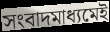
সংবাদমাধ্যমেই